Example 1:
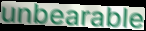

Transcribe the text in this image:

unbearable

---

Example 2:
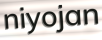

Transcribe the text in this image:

niyojan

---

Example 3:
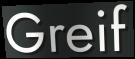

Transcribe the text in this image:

Greif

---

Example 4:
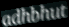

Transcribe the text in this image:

adhbhut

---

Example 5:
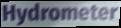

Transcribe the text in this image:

Hydrometer